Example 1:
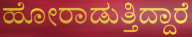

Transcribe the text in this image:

ಹೋರಾಡುತ್ತಿದ್ದಾರೆ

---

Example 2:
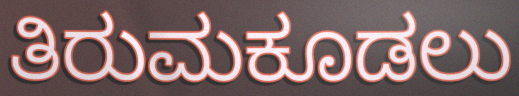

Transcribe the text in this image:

ತಿರುಮಕೂಡಲು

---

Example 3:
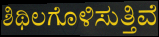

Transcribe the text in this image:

ಶಿಥಿಲಗೊಳಿಸುತ್ತಿವೆ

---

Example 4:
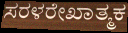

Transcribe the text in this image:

ಸರಳರೇಖಾತ್ಮಕ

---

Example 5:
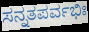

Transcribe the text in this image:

ಸನ್ನತಪರ್ವಭಿಃ